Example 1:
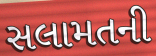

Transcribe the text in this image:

સલામતની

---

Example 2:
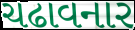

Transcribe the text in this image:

ચઢાવનાર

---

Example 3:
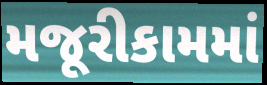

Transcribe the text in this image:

મજૂરીકામમાં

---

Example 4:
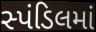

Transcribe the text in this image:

સ્પંડિલમાં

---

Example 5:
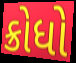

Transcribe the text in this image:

ક્રોધો